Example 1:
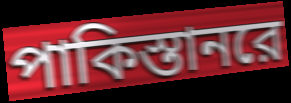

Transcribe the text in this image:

পাকিস্তানরে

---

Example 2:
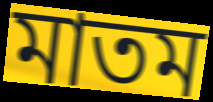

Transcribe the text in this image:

মাতম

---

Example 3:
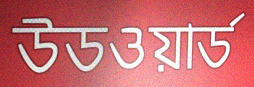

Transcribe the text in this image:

উডওয়ার্ড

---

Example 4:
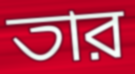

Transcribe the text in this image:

তার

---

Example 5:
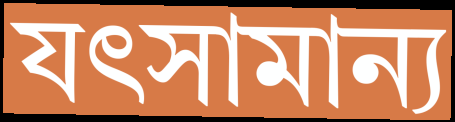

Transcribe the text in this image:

যৎসামান্য